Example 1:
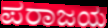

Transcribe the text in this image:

ಪರಾಜಯ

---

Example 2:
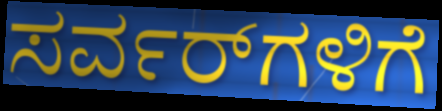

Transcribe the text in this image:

ಸರ್ವರ್‌ಗಳಿಗೆ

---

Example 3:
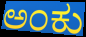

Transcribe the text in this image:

ಅಂಕು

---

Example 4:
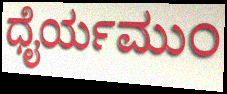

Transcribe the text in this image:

ಧೈರ್ಯಮುಂ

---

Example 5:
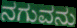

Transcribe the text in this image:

ನಗುವನು